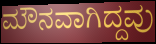
ಮೌನವಾಗಿದ್ದವು